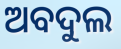
ଅବଦୁଲ